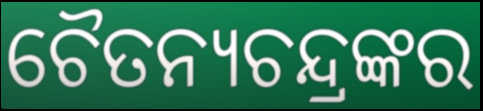
ଚୈତନ୍ୟଚନ୍ଦ୍ରଙ୍କର